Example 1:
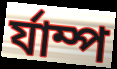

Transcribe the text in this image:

র্যাম্প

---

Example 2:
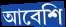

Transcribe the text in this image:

আবেশি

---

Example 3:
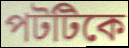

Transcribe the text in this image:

পটটিকে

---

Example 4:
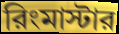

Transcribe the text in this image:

রিংমাস্টার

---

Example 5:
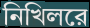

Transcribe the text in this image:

নিখিলরে